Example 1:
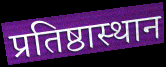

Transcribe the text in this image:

प्रतिष्ठास्थान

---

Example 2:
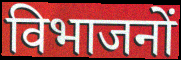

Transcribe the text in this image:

विभाजनों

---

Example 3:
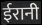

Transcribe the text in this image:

ईरानी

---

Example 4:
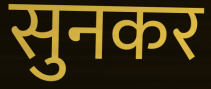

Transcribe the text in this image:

सुनकर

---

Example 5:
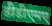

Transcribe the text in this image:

डीडीएमए